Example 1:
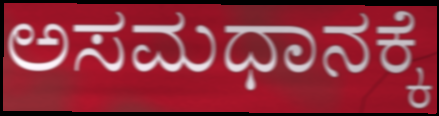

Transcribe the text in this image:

ಅಸಮಧಾನಕ್ಕೆ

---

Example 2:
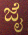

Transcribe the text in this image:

ಜೈ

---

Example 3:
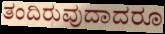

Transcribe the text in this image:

ತಂದಿರುವುದಾದರೂ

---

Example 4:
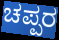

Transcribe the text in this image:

ಚಪ್ಪರ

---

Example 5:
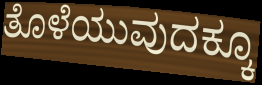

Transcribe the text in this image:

ತೊಳೆಯುವುದಕ್ಕೂ